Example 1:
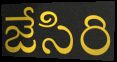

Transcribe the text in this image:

జేసిరి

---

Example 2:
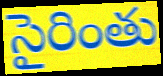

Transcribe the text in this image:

సైరింతు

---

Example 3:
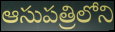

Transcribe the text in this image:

ఆసుపత్రిలోని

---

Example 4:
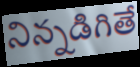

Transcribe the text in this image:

నిన్నడిగితే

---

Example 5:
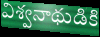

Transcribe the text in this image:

విశ్వనాథుడికి